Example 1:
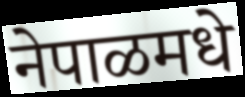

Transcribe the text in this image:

नेपाळमधे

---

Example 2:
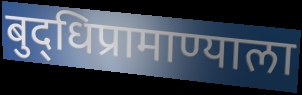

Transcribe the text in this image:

बुद्धिप्रामाण्याला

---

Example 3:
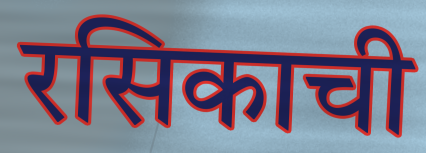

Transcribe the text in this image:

रसिकाची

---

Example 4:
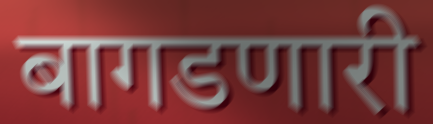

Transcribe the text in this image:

बागडणारी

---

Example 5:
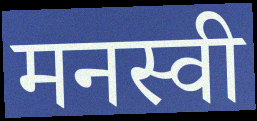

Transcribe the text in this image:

मनस्वी